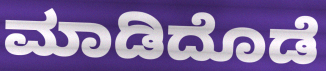
ಮಾಡಿದೊಡೆ